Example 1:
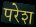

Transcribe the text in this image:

परेश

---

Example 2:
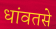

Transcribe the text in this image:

धांवतसे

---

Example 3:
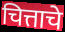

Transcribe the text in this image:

चित्ताचे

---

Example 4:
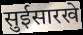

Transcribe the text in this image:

सुईसारखे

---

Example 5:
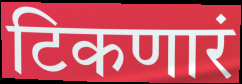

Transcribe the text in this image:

टिकणारं